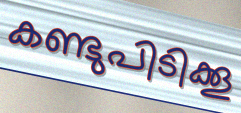
കണ്ടുപിടിക്കൂ